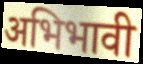
अभिभावी